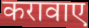
करावाए